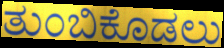
ತುಂಬಿಕೊಡಲು